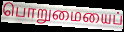
பொறுமையைப்